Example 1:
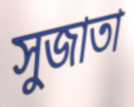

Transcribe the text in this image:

সুজাতা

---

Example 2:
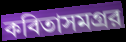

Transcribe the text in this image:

কবিতাসমগ্রর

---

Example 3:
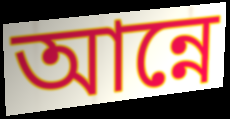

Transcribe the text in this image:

আন্নে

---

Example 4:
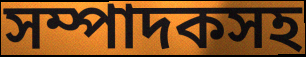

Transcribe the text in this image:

সম্পাদকসহ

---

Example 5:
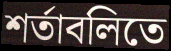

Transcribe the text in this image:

শর্তাবলিতে